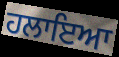
ਹਲਾਇਆ